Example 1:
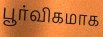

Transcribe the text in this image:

பூர்விகமாக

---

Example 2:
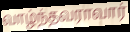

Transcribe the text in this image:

வாழ்ந்தவராவார்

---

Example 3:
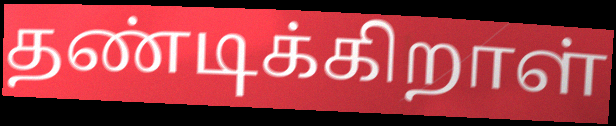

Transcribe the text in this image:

தண்டிக்கிறாள்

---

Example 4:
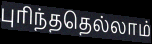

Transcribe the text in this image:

புரிந்ததெல்லாம்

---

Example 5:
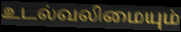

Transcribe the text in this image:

உடல்வலிமையும்